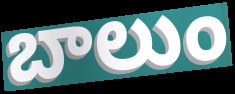
బాలుం